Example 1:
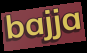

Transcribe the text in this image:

bajja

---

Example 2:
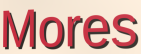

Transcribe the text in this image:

Mores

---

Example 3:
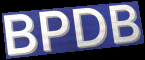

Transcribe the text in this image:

BPDB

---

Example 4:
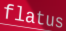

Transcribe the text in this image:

flatus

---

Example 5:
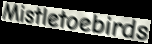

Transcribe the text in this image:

Mistletoebirds